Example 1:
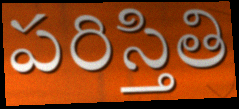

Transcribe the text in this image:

పరిస్తితి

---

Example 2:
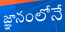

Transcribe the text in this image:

జ్ఞానంలోనే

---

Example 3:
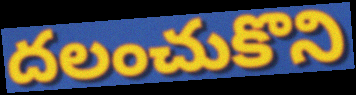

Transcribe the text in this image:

దలంచుకొని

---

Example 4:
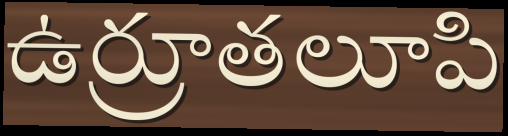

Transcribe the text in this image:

ఉర్రూతలూపి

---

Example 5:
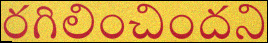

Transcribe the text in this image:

రగిలించిందని